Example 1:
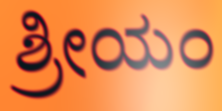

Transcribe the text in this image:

ಶ್ರೀಯಂ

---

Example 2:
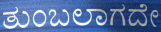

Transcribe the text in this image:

ತುಂಬಲಾಗದೇ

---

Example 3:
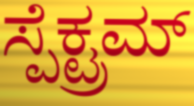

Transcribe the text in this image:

ಸ್ಪೆಕ್ಟ್ರಮ್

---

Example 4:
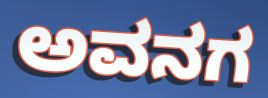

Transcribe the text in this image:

ಅವನಗ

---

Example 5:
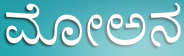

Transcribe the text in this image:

ಮೋಅನ